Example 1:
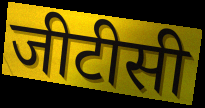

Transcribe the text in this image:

जीटीसी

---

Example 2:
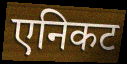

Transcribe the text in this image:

एनिकट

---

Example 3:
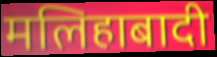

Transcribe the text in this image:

मलिहाबादी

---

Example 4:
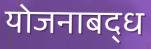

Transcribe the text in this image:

योजनाबद्ध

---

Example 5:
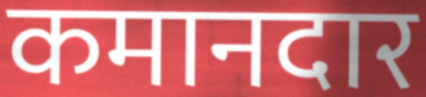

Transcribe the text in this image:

कमानदार